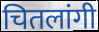
चितलांगी